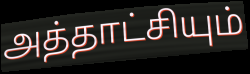
அத்தாட்சியும்